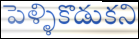
పెళ్ళికొడుకని